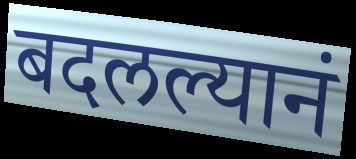
बदलल्यानं